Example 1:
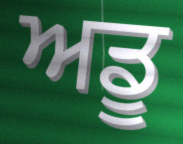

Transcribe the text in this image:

ਅਡੂ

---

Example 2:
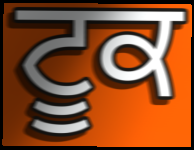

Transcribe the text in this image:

ਟੂਕ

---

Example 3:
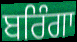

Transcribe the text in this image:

ਬਰਿੰਗਾ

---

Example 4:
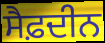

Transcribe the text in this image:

ਸੈਫ਼ਦੀਨ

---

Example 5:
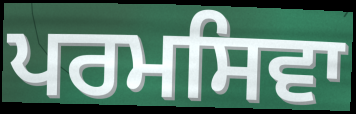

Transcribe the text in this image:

ਪਰਮਸਿਵਾ